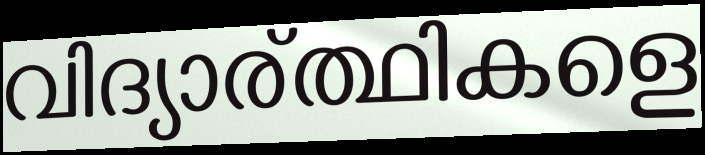
വിദ്യാര്ത്ഥികളെ